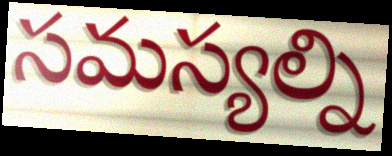
సమస్యల్ని